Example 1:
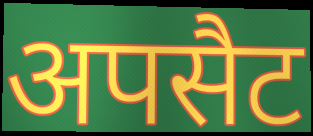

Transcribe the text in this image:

अपसैट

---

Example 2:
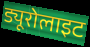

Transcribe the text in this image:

ड्यूरोलाइट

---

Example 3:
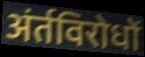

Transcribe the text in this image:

अंर्तविरोधों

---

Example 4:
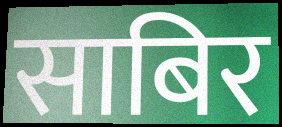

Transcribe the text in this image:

साबिर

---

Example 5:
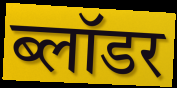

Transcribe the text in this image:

ब्लॉडर